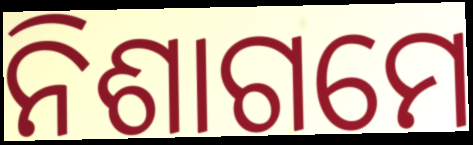
ନିଶାଗମେ